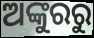
ଅଙ୍କୁରରୁ